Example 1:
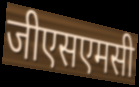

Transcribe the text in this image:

जीएसएमसी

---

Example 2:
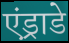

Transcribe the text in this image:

एंड्राडे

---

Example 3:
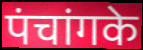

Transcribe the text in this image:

पंचांगके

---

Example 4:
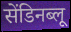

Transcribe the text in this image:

सेंडिनब्लू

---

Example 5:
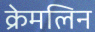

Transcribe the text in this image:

क्रेमलिन